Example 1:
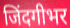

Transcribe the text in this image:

जिंदगीभर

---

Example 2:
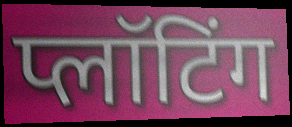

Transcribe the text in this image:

प्लॉटिंग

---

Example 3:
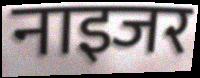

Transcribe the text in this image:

नाइजर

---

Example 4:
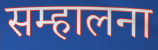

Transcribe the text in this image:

सम्हालना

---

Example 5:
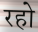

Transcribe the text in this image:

रहो